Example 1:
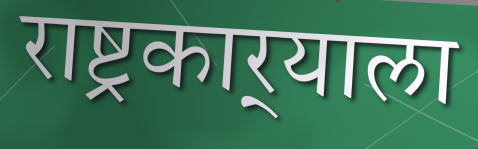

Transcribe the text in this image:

राष्ट्रकार्याला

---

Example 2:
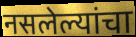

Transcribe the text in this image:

नसलेल्यांचा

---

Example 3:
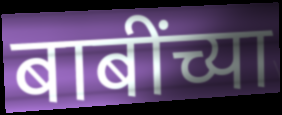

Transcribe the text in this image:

बाबींच्या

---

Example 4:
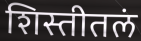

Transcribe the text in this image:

शिस्तीतलं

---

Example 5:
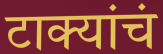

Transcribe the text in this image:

टाक्यांचं